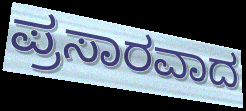
ಪ್ರಸಾರವಾದ